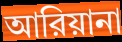
আরিয়ানা